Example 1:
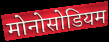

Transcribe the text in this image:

मोनोसोडियम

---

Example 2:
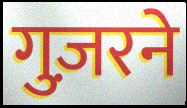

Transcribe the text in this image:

गुज़रने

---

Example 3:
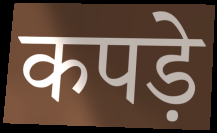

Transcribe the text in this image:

कपड़े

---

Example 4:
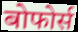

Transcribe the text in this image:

बोफोर्स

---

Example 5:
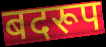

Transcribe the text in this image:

बदरूप